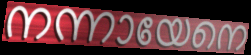
നന്നായേനെ